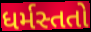
ધર્મસ્તતો